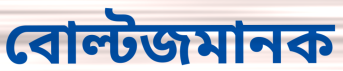
বোল্টজমানক